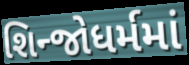
શિન્જોધર્મમાં